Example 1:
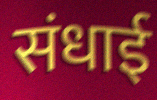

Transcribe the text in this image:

संधाई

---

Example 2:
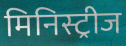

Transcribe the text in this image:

मिनिस्ट्रीज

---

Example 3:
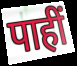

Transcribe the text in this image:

पाहीं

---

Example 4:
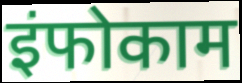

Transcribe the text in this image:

इंफोकाम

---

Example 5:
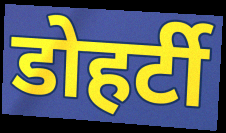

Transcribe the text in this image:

डोहर्टी